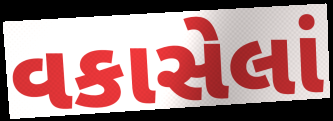
વકાસેલાં